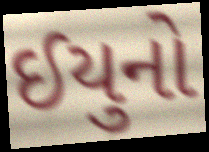
ઈયુનો